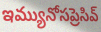
ఇమ్యునోసప్రెసివ్